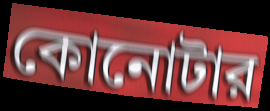
কোনোটার